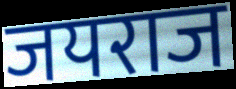
जयराज